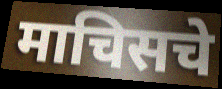
माचिसचे